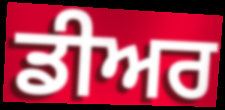
ਡੀਅਰ